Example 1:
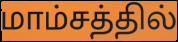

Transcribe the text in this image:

மாம்சத்தில்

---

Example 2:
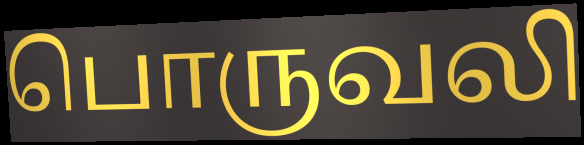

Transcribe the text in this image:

பொருவலி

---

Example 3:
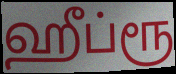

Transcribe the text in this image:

ஹீப்ரூ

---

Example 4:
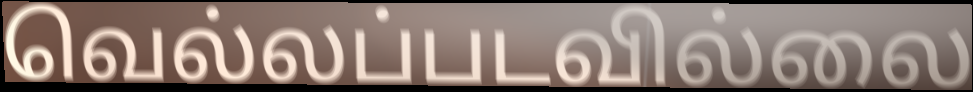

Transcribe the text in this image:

வெல்லப்படவில்லை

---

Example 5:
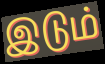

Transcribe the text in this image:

இடும்